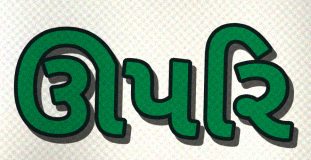
ઊપરિ